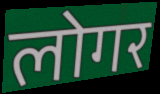
लोगर